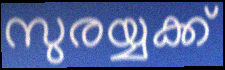
സുരയ്യക്ക്